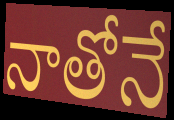
నాతోనే